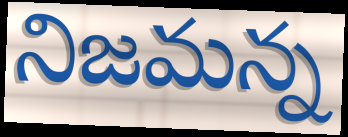
నిజమన్న